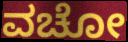
ವಚೋ